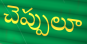
చెప్పులూ